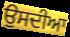
ਉਸਦੀਆ